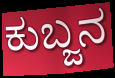
ಕುಬ್ಜನ